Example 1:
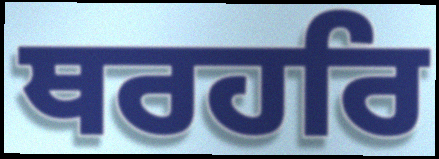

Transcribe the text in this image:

ਥਰਹਰਿ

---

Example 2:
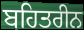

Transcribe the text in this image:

ਬਹਿਤਰੀਨ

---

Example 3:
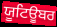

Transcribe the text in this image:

ਯੂਟਿਊਬਰ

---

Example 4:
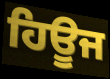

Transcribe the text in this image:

ਹਿਊਜ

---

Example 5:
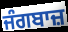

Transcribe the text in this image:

ਜੰਗਬਾਜ਼